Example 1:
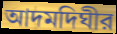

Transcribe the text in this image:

আদমদিঘীর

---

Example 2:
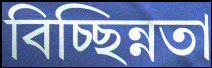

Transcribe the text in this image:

বিচ্ছিন্নতা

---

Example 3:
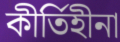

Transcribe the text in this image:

কীর্তিহীনা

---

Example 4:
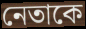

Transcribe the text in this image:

নেতাকে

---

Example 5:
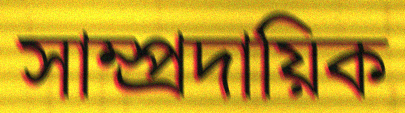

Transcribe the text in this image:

সাম্প্রদায়িক